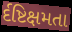
ર્દષ્ટિક્ષમતા